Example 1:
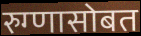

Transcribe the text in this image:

रुग्णासोबत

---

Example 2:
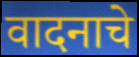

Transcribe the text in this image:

वादनाचे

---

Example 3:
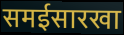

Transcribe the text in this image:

समईसारखा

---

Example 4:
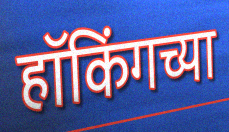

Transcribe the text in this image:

हॉकिंगच्या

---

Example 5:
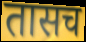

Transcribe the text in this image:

तासच